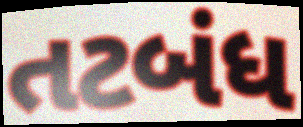
તટબંધ